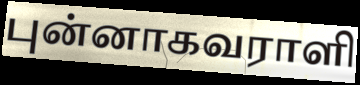
புன்னாகவராளி